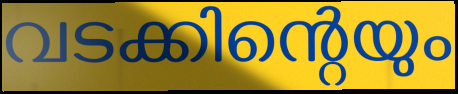
വടക്കിന്റെയും